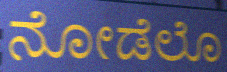
ನೋಡೆಲೊ